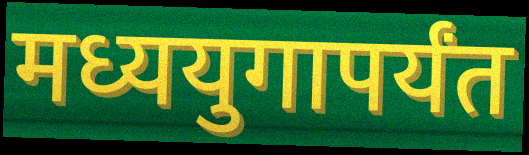
मध्ययुगापर्यंत